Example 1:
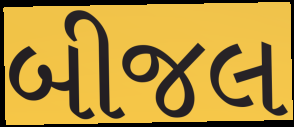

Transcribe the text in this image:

બીજલ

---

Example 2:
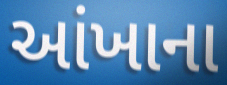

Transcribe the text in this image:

આંખાના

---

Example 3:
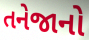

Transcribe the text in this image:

તનેજાનો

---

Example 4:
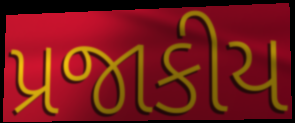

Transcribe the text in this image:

પ્રજાકીય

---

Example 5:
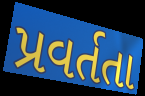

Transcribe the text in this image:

પ્રવર્તતા